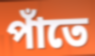
পাঁতে